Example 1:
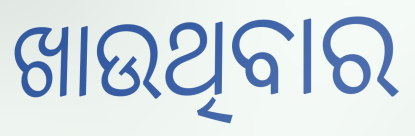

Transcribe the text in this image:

ଖାଉଥିବାର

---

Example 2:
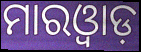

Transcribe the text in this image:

ମାରଓ୍ୱାଡ଼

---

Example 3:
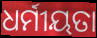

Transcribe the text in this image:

ଧର୍ମୀୟତା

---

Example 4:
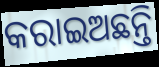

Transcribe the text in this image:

କରାଇଅଛନ୍ତି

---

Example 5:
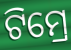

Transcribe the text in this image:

ଟିମ୍ରେ